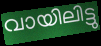
വായിലിട്ടു